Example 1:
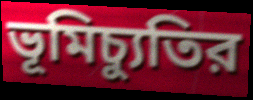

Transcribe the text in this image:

ভূমিচ্যুতির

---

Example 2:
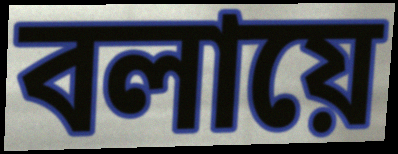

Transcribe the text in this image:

বলায়ে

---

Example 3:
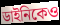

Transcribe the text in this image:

ডাইনিকেও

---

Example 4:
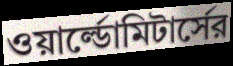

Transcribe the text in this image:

ওয়ার্ল্ডোমিটার্সের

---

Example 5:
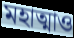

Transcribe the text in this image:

মহাত্মাও